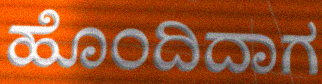
ಹೊಂದಿದಾಗ